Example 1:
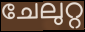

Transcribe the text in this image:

ചേലുറ്റ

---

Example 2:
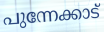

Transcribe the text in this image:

പുന്നേക്കാട്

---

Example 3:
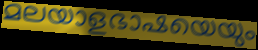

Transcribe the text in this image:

മലയാളഭാഷയെയും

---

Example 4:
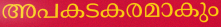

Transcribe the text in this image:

അപകടകരമാകും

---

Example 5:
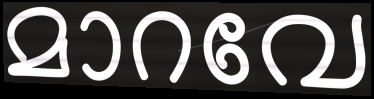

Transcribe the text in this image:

മാറവേ